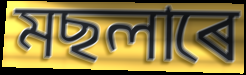
মছলাৰে